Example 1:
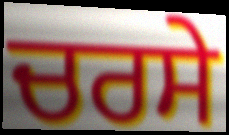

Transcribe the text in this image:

ਚਰਸੇ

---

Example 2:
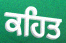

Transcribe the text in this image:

ਕਹਿਤ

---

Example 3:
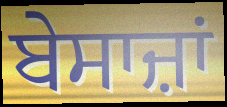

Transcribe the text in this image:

ਬੇਸਾਜ਼ਾਂ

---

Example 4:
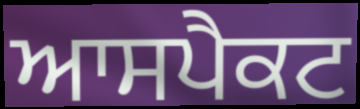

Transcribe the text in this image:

ਆਸਪੈਕਟ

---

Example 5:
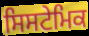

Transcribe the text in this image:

ਸਿਸਟੇਮਿਕ